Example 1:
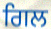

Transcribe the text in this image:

ਗਿਲ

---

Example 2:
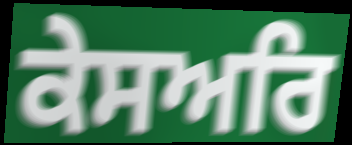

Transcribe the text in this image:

ਕੇਸਅਰਿ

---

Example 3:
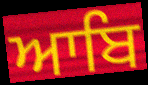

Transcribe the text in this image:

ਆਬਿ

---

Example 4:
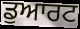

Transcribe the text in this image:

ਡੁਆਰਟ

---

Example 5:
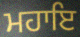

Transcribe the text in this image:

ਮਹਾਇ